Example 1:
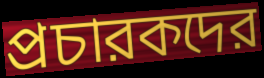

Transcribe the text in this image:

প্রচারকদের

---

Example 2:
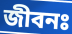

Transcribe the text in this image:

জীবনঃ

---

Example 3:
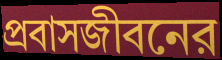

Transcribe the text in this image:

প্রবাসজীবনের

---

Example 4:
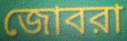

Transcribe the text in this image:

জোবরা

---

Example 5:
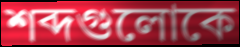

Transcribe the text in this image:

শব্দগুলোকে